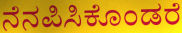
ನೆನಪಿಸಿಕೊಂಡರೆ